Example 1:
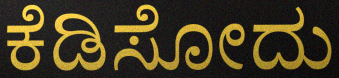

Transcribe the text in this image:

ಕೆಡಿಸೋದು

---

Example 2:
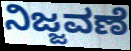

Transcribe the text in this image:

ನಿಜ್ಜವಣೆ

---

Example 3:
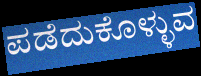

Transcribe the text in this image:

ಪಡೆದುಕೊಳ್ಳುವ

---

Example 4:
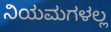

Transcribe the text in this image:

ನಿಯಮಗಳಲ್ಲ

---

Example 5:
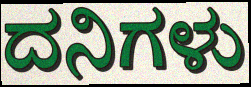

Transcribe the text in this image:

ದನಿಗಳು